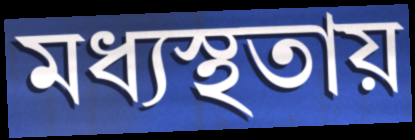
মধ্যস্থতায়